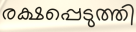
രക്ഷപ്പെടുത്തി